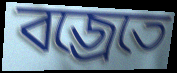
বজ্রেতে